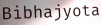
Bibhajyota